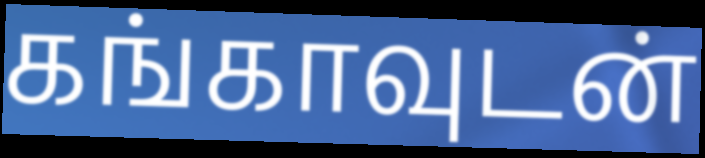
கங்காவுடன்